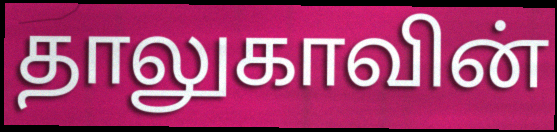
தாலுகாவின்